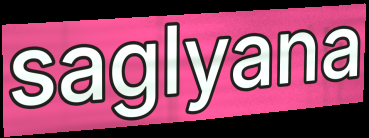
saglyana